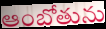
ఆంబోతును